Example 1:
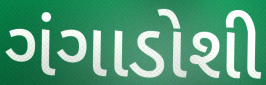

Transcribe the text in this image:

ગંગાડોશી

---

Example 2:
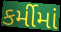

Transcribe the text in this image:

કર્મીમાં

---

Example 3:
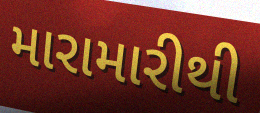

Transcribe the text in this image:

મારામારીથી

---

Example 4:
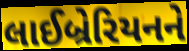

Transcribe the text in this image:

લાઈબ્રેરિયનને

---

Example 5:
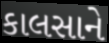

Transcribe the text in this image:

કાલસાને